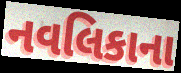
નવલિકાના